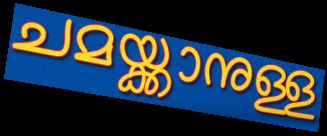
ചമയ്ക്കാനുള്ള